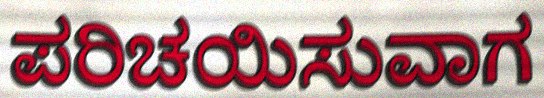
ಪರಿಚಯಿಸುವಾಗ